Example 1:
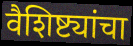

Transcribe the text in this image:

वैशिष्ट्यांचा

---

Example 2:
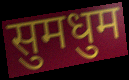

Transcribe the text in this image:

सुमधुम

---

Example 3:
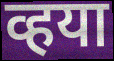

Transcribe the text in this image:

व्हया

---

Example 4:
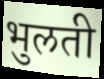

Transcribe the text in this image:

भुलती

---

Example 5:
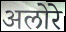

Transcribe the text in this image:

अलोरे